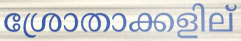
ശ്രോതാക്കളില്